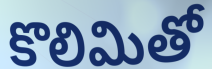
కొలిమితో